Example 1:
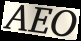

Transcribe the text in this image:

AEO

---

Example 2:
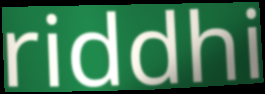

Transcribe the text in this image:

riddhi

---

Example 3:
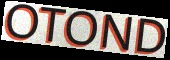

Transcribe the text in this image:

OTOND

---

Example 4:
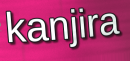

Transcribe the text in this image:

kanjira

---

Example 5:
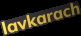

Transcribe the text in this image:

lavkarach